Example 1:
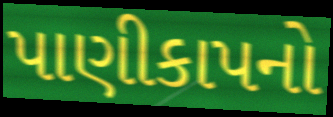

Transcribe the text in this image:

પાણીકાપનો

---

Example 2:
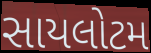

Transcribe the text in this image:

સાયલોટમ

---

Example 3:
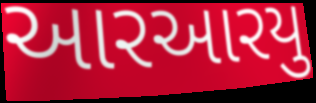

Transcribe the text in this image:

આરઆરયુ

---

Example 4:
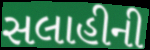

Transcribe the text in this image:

સલાહીની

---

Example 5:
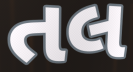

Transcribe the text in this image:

તલ